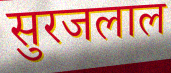
सुरजलाल